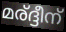
മര്ദ്ദീന്